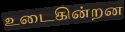
உடைகின்றன